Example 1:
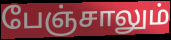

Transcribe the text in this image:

பேஞ்சாலும்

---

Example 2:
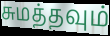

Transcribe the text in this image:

சுமத்தவும்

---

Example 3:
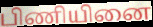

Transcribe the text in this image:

பிணியினை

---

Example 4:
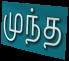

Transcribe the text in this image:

முந்த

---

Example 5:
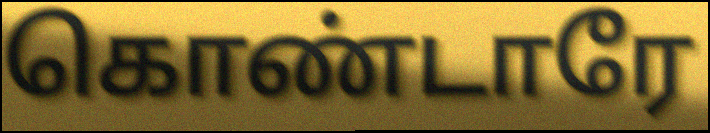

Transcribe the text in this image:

கொண்டாரே